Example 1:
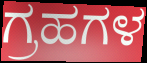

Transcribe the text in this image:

ಗ್ರಹಗಳ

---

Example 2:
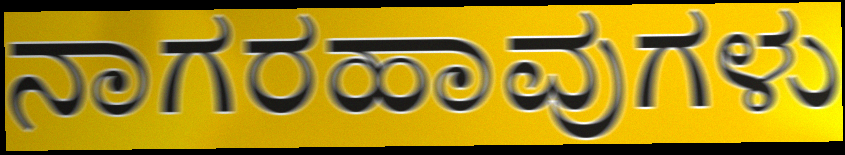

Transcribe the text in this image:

ನಾಗರಹಾವುಗಳು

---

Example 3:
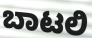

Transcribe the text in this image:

ಬಾಟಲಿ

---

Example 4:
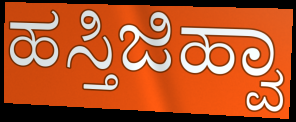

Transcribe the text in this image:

ಹಸ್ತಿಜಿಹ್ವಾ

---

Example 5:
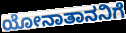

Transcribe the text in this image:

ಯೋನಾತಾನನಿಗೆ